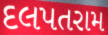
દલપતરામ